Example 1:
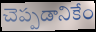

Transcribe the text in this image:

చెప్పడానికేం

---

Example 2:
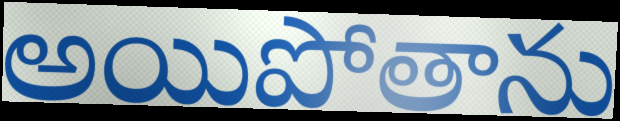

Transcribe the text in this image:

అయిపోతాను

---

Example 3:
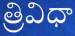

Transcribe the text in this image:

త్రివిధా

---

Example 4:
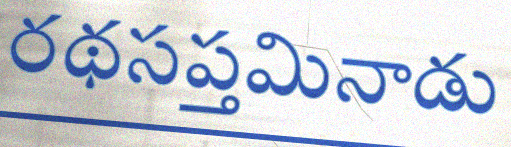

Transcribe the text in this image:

రథసప్తమినాడు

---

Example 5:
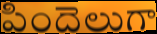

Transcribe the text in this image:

పిందెలుగా